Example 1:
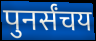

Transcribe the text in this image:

पुनर्संचय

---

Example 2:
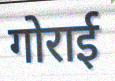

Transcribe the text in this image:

गोराई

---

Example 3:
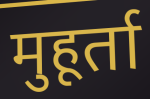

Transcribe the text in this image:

मुहूर्ता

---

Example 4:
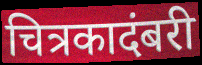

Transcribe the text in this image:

चित्रकादंबरी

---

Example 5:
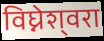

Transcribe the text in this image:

विघ्नेश्वरा